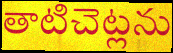
తాటిచెట్లను